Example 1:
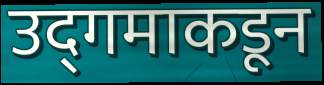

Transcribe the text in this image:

उद्‌गमाकडून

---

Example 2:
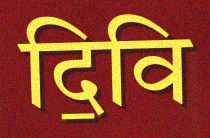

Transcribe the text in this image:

दि॒वि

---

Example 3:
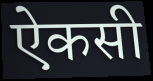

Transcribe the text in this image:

ऐकसी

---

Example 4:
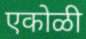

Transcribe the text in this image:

एकोळी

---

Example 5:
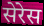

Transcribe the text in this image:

सेरेस